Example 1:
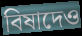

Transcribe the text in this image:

বিষাদেও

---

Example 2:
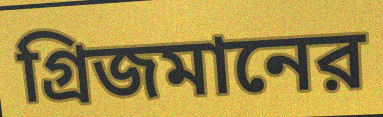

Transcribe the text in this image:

গ্রিজমানের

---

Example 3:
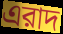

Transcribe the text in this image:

এরাদ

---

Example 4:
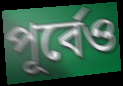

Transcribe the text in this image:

পূর্বেও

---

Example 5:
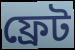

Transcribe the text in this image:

ফ্রেট